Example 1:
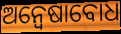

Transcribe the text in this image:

ଅନ୍ୱେଷାବୋଧ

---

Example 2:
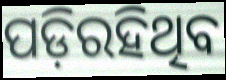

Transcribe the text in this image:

ପଡ଼ିରହିଥିବ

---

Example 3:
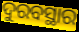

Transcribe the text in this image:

ଦୁରବସ୍ଥାର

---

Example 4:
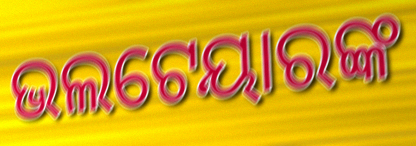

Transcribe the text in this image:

ଭଲଟେୟାରଙ୍କ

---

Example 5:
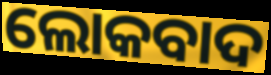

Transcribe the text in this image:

ଲୋକବାଦ